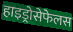
हाइड्रोसेफेलस